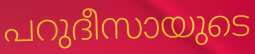
പറുദീസായുടെ